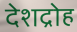
देशद्रोह